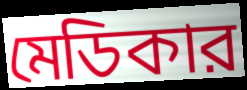
মেডিকার